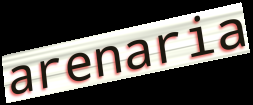
arenaria